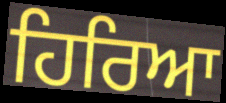
ਹਿਰਿਆ